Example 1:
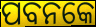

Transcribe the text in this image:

ପବନକେ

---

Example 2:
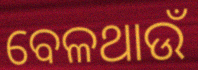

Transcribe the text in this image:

ବେଳଥାଉଁ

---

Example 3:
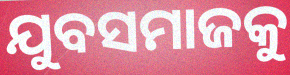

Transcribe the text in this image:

ଯୁବସମାଜକୁ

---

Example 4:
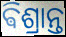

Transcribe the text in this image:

ଵିଶ୍ରାନ୍ତ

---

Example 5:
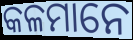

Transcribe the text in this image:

କଳମାନେ